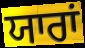
ਯਾਰਾਂ